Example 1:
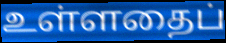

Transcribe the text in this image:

உள்ளதைப்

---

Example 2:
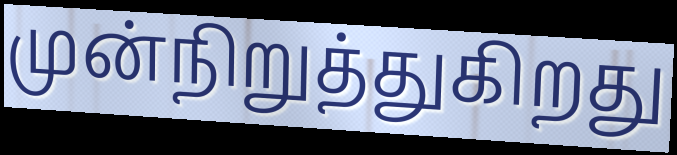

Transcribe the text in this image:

முன்நிறுத்துகிறது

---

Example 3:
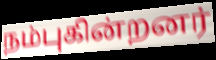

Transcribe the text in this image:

நம்புகின்றனர்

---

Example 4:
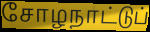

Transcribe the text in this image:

சோழநாட்டுப்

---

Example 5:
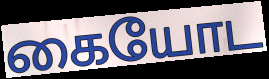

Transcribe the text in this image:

கையோட